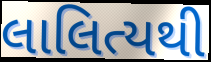
લાલિત્યથી